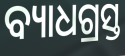
ବ୍ୟାଧଗ୍ରସ୍ତ